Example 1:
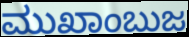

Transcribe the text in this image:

ಮುಖಾಂಬುಜ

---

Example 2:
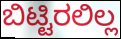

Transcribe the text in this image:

ಬಿಟ್ಟಿರಲಿಲ್ಲ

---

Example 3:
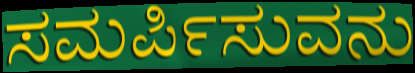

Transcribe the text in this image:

ಸಮರ್ಪಿಸುವನು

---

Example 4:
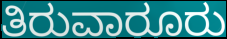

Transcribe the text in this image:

ತಿರುವಾರೂರು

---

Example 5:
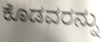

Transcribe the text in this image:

ಕೊಡವರನ್ನು